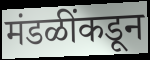
मंडळींकडून